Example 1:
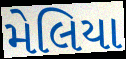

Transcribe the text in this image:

મેલિયા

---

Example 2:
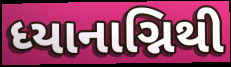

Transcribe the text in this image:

ધ્યાનાગ્નિથી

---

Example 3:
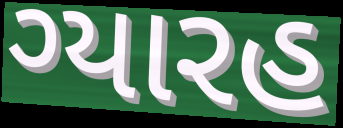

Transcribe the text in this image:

ગ્યારહ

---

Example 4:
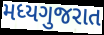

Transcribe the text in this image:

મધ્યગુજરાત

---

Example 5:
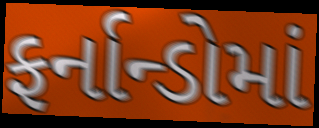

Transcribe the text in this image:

ફર્નાન્ડોમાં